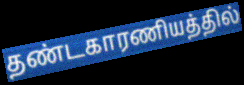
தண்டகாரணியத்தில்